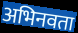
अभिनवता